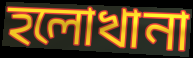
হলোখানা